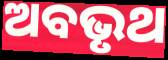
ଅବଭୃଥ